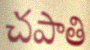
చపాతి